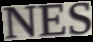
NES